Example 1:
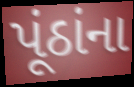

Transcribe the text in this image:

પૂંઠાંના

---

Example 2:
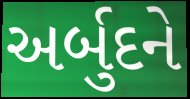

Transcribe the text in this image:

અર્બુદને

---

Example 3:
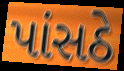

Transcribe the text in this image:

પાંસઠે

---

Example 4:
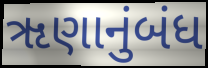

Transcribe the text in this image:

ૠણાનુંબંધ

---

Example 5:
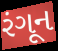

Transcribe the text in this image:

રંગૂન